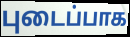
புடைப்பாக